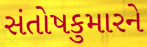
સંતોષકુમારને